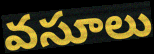
వసూలు